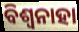
ବିଶ୍ଵନାହା